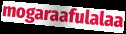
mogaraafulalaa